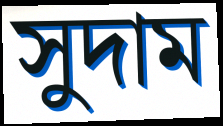
সুদাম